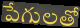
పేగులతో